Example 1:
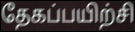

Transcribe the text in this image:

தேகப்பயிற்சி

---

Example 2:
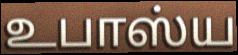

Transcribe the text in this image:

உபாஸ்ய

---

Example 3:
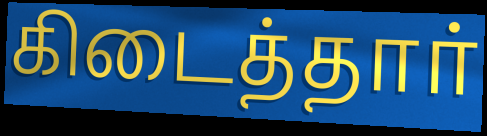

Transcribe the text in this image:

கிடைத்தார்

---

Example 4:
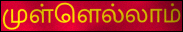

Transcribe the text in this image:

முள்ளெல்லாம்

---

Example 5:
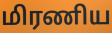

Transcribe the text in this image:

மிரணிய